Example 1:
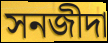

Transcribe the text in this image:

সনজীদা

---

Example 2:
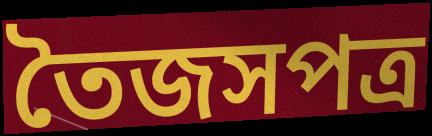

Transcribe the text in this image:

তৈজসপত্র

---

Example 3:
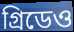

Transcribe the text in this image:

গ্রিডেও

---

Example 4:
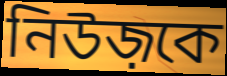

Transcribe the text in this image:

নিউজ়কে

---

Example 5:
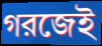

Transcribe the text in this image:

গরজেই